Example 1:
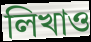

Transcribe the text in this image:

লিখাও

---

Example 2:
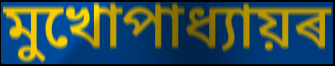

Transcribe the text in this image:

মুখোপাধ্যায়ৰ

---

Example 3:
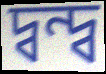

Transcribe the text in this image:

দ্বন্দ্ব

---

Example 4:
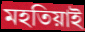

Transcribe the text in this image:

মহতিয়াই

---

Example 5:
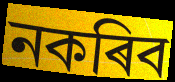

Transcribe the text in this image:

নকৰিব